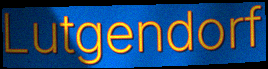
Lutgendorf